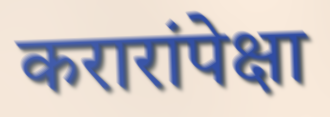
करारांपेक्षा